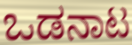
ಒಡನಾಟ